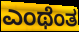
ಎಂಥೆಂತ